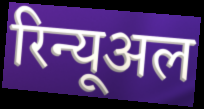
रिन्यूअल